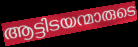
ആട്ടിടയന്മാരുടെ